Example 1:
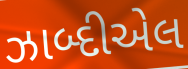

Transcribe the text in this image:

ઝાબ્દીએલ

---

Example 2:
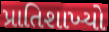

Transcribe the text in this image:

પ્રાતિશાખ્યો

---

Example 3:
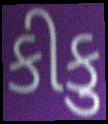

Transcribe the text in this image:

કીકુ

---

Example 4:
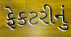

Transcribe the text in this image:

ફેકટરીનું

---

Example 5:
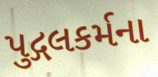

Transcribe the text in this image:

પુદ્ગલકર્મના